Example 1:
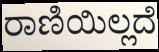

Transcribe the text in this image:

ರಾಣಿಯಿಲ್ಲದೆ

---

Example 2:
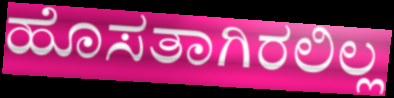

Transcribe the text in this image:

ಹೊಸತಾಗಿರಲಿಲ್ಲ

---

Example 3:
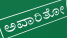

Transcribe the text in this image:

ಅವಾರಿತೋ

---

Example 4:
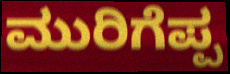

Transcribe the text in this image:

ಮುರಿಗೆಪ್ಪ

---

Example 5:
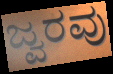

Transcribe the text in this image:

ಜ್ವರವು